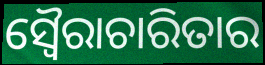
ସ୍ୱୈରାଚାରିତାର